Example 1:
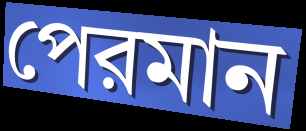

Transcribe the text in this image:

পেরমান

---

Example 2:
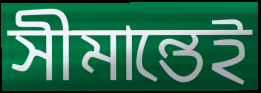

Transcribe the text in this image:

সীমান্তেই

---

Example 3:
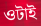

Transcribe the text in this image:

ওটাই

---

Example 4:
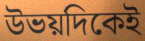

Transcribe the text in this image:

উভয়দিকেই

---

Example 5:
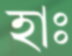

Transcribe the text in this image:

হাঃ